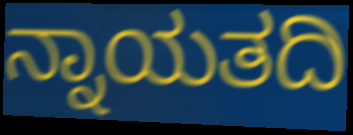
ನ್ನಾಯತದಿ